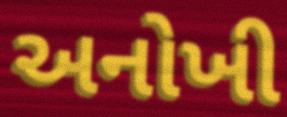
અનોખી